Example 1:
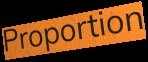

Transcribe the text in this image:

Proportion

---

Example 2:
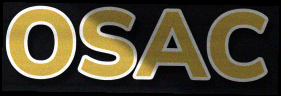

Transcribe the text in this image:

OSAC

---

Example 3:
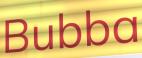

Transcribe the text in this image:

Bubba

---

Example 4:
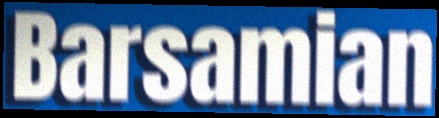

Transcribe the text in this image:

Barsamian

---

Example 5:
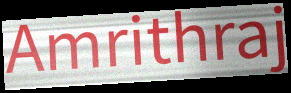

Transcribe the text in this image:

Amrithraj